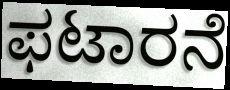
ಫಟಾರನೆ